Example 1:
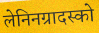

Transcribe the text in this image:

लेनिनग्रादस्को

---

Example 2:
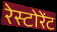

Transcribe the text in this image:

रेस्‍टोरेंट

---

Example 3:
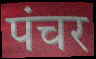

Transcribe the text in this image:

पंचर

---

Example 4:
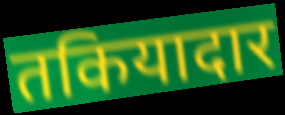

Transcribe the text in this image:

तकियादार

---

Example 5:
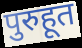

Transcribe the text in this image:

पुरुहूत